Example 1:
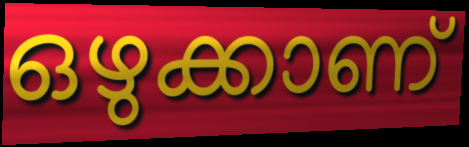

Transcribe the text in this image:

ഒഴുക്കാണ്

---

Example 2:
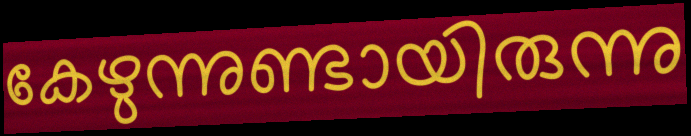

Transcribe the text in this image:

കേഴുന്നുണ്ടായിരുന്നു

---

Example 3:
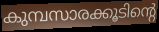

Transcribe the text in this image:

കുമ്പസാരക്കൂടിന്റെ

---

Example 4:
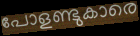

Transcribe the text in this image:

പോളണ്ടുകാരെ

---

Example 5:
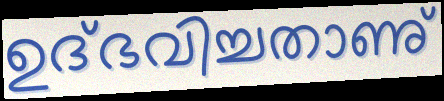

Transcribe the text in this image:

ഉദ്ഭവിച്ചതാണു്